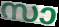
സാ